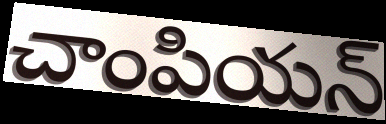
చాంపియన్